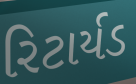
રિટાર્યડ